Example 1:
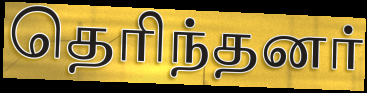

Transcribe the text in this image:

தெரிந்தனர்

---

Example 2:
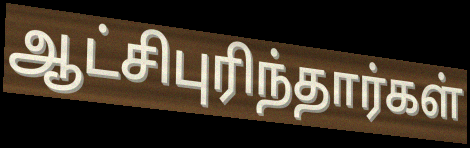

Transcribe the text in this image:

ஆட்சிபுரிந்தார்கள்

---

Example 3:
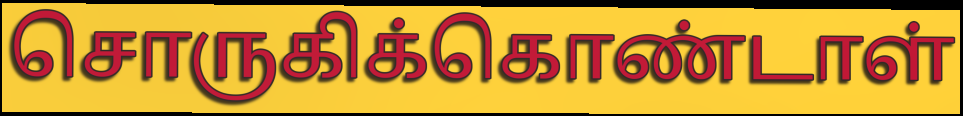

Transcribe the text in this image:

சொருகிக்கொண்டாள்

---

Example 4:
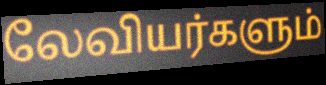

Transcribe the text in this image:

லேவியர்களும்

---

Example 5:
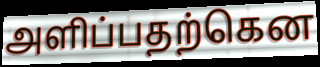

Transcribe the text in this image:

அளிப்பதற்கென